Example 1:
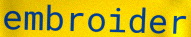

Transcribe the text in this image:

embroider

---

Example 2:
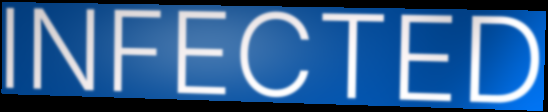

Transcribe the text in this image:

INFECTED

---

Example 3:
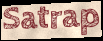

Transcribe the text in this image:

Satrap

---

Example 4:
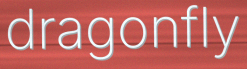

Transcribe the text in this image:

dragonfly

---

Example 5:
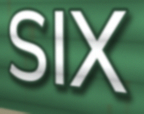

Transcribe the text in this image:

SIX